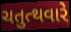
ચતુત્થવારે